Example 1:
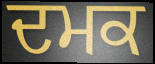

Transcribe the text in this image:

ਦਮਕ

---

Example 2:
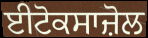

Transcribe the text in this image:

ਈਟੋਕਸਾਜ਼ੋਲ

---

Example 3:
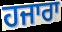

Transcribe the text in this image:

ਹਜਾਰਾ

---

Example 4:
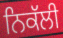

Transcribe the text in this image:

ਨਿਕੱਲੀ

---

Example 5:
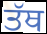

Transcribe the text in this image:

ਤੱਥ